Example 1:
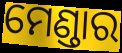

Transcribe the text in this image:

ମେଣ୍ଡାର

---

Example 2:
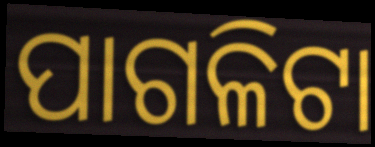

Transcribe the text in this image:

ପାଗଳିଟା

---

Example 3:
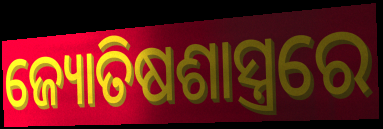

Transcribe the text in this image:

ଜ୍ୟୋତିଷଶାସ୍ତ୍ରରେ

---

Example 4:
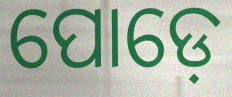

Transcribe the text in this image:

ପୋଡ଼େ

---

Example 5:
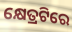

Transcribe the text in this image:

କ୍ଷେତ୍ରଟିରେ